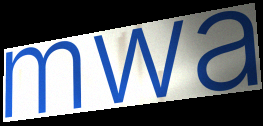
mwa